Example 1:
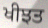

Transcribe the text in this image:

ਖੀਝਤ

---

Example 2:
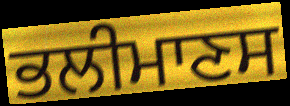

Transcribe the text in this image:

ਭਲੀਮਾਣਸ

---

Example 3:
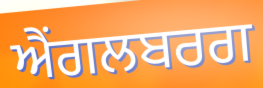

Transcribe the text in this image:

ਐਂਗਲਬਰਗ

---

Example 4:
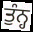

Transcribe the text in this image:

ਤੁੰਨ੍ਹ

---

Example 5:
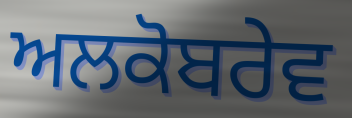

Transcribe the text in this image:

ਅਲਕੋਬਰੇਵ